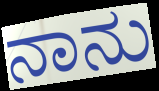
ನಾನು